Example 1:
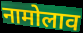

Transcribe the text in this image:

नामोलाव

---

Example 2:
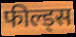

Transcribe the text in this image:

फील्ड्स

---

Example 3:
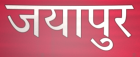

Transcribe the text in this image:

जयापुर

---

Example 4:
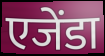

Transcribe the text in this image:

एजेंडा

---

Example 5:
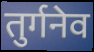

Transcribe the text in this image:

तुर्गनेव